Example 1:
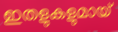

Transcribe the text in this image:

ഇതളുകളുമായ്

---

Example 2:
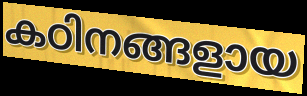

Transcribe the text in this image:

കഠിനങ്ങളായ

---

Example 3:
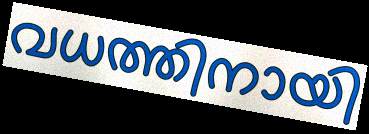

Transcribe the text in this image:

വധത്തിനായി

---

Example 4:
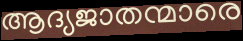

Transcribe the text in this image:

ആദ്യജാതന്മാരെ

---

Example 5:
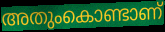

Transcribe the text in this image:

അതുംകൊണ്ടാണ്